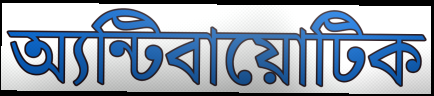
অ্যন্টিবায়োটিক